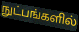
நுட்பங்களில்